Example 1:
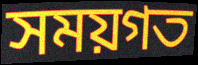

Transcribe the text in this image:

সময়গত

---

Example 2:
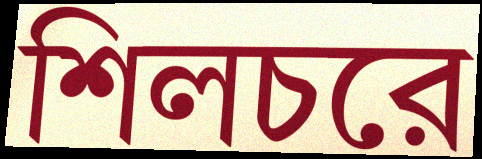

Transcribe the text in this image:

শিলচরে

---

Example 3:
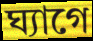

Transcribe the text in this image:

ঘ্যাগে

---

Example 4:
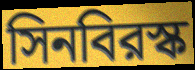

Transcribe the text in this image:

সিনবিরস্ক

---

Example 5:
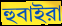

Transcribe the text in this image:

হুবাইরা